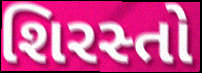
શિરસ્તો